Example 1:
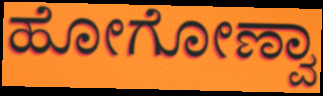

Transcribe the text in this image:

ಹೋಗೋಣ್ವಾ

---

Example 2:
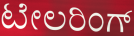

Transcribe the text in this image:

ಟೇಲರಿಂಗ್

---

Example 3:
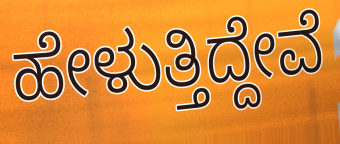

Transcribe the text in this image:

ಹೇಳುತ್ತಿದ್ದೇವೆ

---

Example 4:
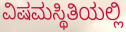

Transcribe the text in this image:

ವಿಷಮಸ್ಥಿತಿಯಲ್ಲಿ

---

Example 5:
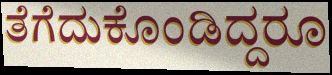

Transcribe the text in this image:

ತೆಗೆದುಕೊಂಡಿದ್ದರೂ